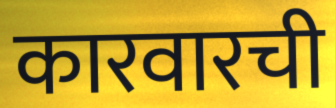
कारवारची